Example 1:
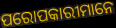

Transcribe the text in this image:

ପରୋପକାରୀମାନେ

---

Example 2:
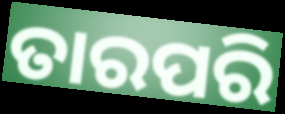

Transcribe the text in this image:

ତାରପରି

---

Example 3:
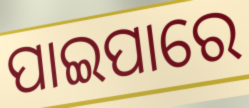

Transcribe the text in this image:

ପାଇପାରେ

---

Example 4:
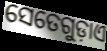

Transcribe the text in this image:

ସେତେଗୁଡ଼ାଏ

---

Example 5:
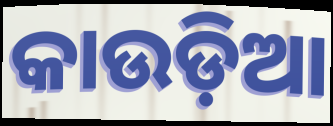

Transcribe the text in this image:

କାଉଡ଼ିଆ